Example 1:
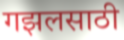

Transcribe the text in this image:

गझलसाठी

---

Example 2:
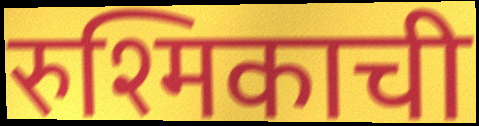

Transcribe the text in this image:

रुश्मिकाची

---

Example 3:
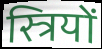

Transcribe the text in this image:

स्त्रियों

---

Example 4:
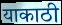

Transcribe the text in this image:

याकाठी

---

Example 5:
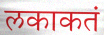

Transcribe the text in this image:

लकाकतं